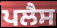
ਪਲੈਸ